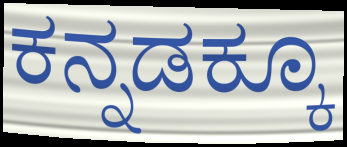
ಕನ್ನಡಕ್ಕೂ